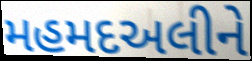
મહમદઅલીને